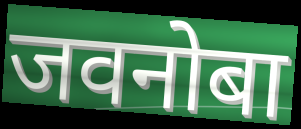
जवनोबा